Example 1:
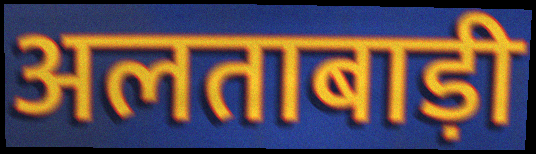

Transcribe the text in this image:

अलताबाड़ी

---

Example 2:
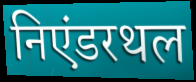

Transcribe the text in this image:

निएंडरथल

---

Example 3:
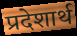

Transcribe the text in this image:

प्रदेशार्थ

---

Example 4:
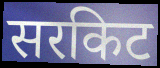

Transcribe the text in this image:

सरकिट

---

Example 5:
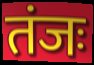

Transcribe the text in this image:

तंजः